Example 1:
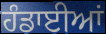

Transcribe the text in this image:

ਹੰਡਾਈਆਂ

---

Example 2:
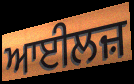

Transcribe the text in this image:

ਆਈਲਜ਼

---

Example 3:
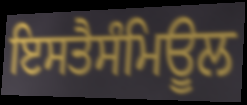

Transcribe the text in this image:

ਇਸਤੈਸੰਮਿਊਲ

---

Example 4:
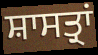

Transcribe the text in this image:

ਸ਼ਾਸਤ੍ਰਾਂ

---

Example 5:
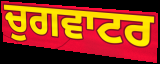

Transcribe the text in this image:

ਚੁਗਵਾਟਰ